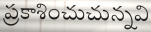
ప్రకాశించుచున్నవి